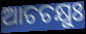
ଆଚଚକ୍ଷୁଃ